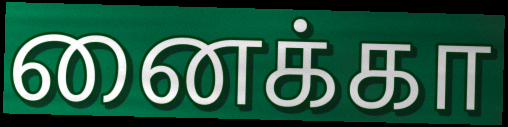
னைக்கா